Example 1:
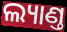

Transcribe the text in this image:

ଲ୍ୟାଣ୍ତ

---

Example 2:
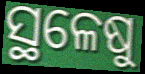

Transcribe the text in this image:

ସ୍ଥଳେଷୁ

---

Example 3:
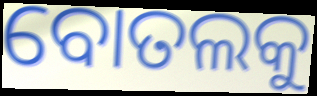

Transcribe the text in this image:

ବୋତଲକୁ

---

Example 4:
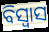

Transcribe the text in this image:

ବିସ୍ବାସ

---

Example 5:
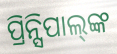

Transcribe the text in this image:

ପ୍ରିନ୍ସିପାଲ୍‍ଙ୍କ